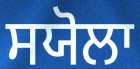
ਸਯੋਲਾ